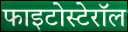
फाइटोस्टेरॉल